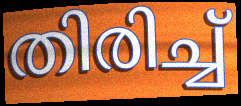
തിരിച്ച്